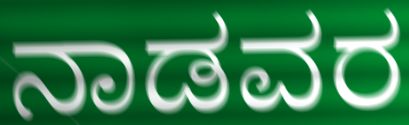
ನಾಡವರ